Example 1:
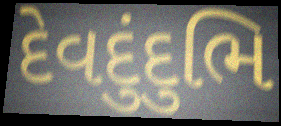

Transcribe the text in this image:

દેવદુંદુભિ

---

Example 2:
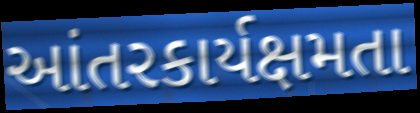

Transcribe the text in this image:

આંતરકાર્યક્ષમતા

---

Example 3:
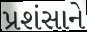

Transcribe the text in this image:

પ્રશંસાને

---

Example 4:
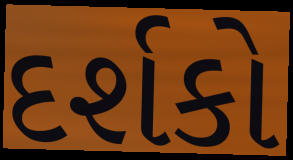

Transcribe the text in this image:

દર્શકો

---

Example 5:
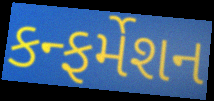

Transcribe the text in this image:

કન્ફર્મેશન